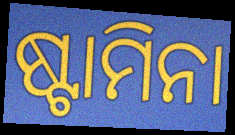
ଷ୍ଟାମିନା